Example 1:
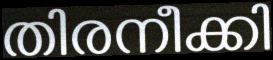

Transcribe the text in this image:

തിരനീക്കി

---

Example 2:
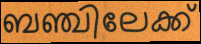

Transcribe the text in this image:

ബഞ്ചിലേക്ക്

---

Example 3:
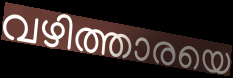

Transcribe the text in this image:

വഴിത്താരയെ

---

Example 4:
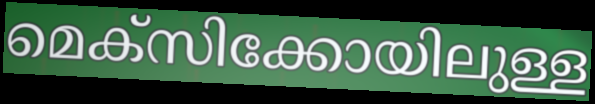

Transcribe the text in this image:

മെക്സിക്കോയിലുള്ള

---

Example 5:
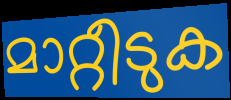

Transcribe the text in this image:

മാറ്റീടുക